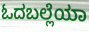
ಓದಬಲ್ಲೆಯಾ